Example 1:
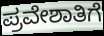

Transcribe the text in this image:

ಪ್ರವೇಶಾತಿಗೆ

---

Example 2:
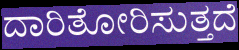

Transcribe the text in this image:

ದಾರಿತೋರಿಸುತ್ತದೆ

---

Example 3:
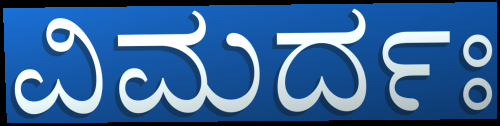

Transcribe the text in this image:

ವಿಮರ್ದಃ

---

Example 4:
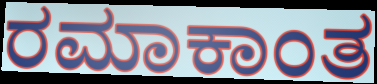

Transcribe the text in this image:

ರಮಾಕಾಂತ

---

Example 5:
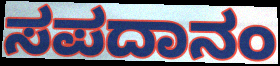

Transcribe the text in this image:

ಸಪದಾನಂ